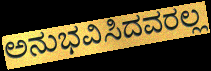
ಅನುಭವಿಸಿದವರಲ್ಲ